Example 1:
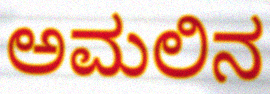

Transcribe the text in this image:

ಅಮಲಿನ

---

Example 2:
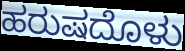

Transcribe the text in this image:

ಹರುಷದೊಳು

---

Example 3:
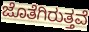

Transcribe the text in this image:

ಜೊತೆಗಿರುತ್ತವೆ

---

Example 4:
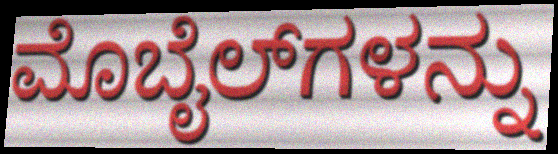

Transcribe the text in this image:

ಮೊಬೈಲ್‌ಗಳನ್ನು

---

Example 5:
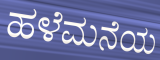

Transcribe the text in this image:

ಹಳೆಮನೆಯ